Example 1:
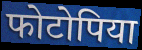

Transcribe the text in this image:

फोटोपिया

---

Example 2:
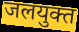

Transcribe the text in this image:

जलयुक्त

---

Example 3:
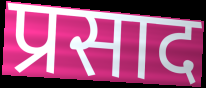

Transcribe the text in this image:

प्रसाद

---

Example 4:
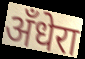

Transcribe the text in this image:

अँधेरा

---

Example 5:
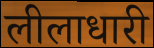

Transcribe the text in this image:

लीलाधारी